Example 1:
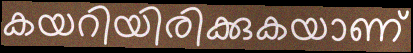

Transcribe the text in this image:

കയറിയിരിക്കുകയാണ്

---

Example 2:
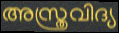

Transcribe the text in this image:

അസ്ത്രവിദ്യ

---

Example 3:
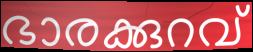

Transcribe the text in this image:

ഭാരക്കുറവ്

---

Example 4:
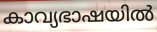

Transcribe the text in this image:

കാവ്യഭാഷയിൽ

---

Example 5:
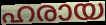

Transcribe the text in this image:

ഹരായ